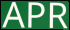
APR